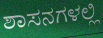
ಶಾಸನಗಳಲ್ಲಿ